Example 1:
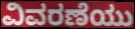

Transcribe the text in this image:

ವಿವರಣೆಯು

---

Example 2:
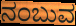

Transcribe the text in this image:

ನಂಬುವ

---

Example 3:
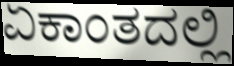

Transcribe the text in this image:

ಏಕಾಂತದಲ್ಲಿ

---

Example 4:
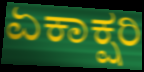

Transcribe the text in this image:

ಏಕಾಕ್ಷರಿ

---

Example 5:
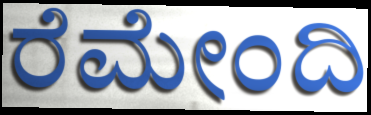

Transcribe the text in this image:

ರೆಮೇಂದಿ